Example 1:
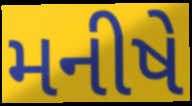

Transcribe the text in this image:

મનીષે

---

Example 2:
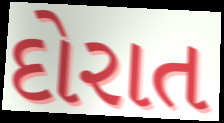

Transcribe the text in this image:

દોરાત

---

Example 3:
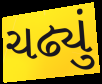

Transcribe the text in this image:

ચઢ્યું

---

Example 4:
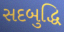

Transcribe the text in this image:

સદબુદ્ધિ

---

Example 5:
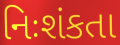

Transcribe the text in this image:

નિઃશંકતા